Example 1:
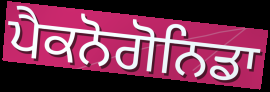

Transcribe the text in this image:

ਪੈਕਨੋਗੋਨਿਡਾ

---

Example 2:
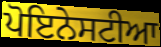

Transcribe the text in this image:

ਪੋਇਨੇਸਟੀਆ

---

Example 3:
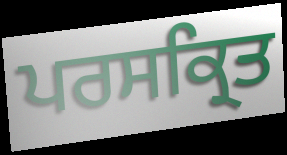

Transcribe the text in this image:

ਪਰਸਕ੍ਰਿਤ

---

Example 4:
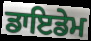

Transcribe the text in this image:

ਡਾਇਡੇਮ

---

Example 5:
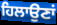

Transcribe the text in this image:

ਹਿਲਾਉਣਾਂ